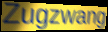
Zugzwang